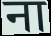
ना